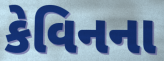
કેવિનના